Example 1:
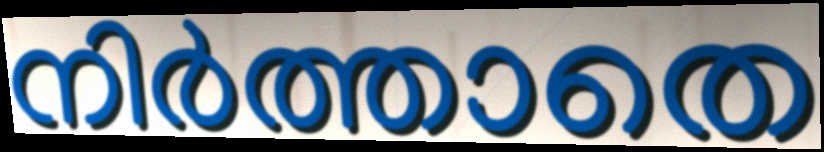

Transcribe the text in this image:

നിർത്താതെ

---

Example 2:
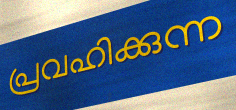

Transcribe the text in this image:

പ്രവഹിക്കുന്ന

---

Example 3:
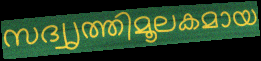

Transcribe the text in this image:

സദ്വൃത്തിമൂലകമായ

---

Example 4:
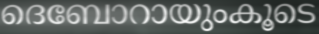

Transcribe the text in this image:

ദെബോറായുംകൂടെ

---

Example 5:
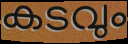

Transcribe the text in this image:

കടവും